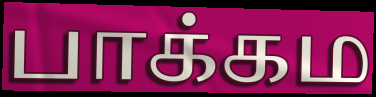
பாக்கம